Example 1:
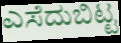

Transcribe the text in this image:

ಎಸೆದುಬಿಟ್ಟ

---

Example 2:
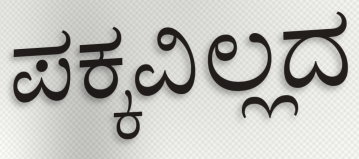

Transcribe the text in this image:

ಪಕ್ಕವಿಲ್ಲದ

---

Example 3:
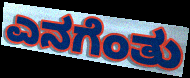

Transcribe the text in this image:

ಎನಗೆಂತು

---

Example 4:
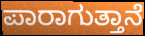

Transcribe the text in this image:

ಪಾರಾಗುತ್ತಾನೆ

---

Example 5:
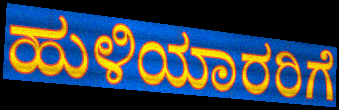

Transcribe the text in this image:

ಹುಳಿಯಾರರಿಗೆ